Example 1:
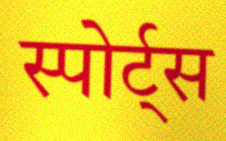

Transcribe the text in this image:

स्पोर्ट्स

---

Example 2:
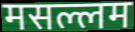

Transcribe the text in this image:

मसल्लम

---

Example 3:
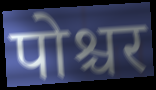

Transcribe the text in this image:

पोश्चर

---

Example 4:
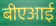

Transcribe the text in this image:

बीएआई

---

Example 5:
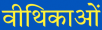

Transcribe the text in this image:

वीथिकाओं